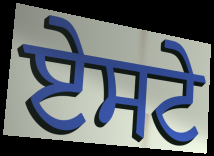
ਏਸਟੇ